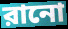
রানো